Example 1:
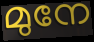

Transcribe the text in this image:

മുനേ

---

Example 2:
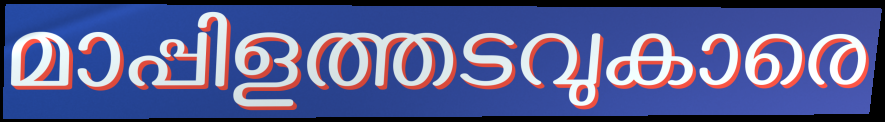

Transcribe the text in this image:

മാപ്പിളത്തടവുകാരെ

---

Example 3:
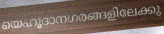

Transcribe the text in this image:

യെഹൂദാനഗരങ്ങളിലേക്കു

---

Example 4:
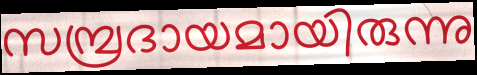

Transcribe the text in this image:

സമ്പ്രദായമായിരുന്നു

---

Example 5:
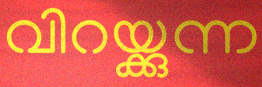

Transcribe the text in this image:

വിറയ്ക്കുന്ന